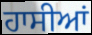
ਹਾਸੀਆਂ